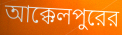
আক্কেলপুরের